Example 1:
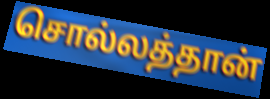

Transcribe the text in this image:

சொல்லத்தான்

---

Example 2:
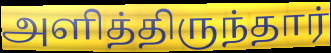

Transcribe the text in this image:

அளித்திருந்தார்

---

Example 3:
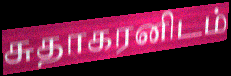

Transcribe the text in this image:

சுதாகரனிடம்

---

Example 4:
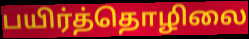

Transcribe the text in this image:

பயிர்த்தொழிலை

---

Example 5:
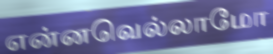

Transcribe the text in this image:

என்னவெல்லாமோ